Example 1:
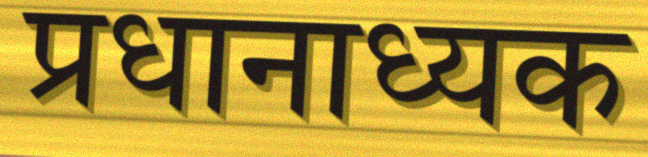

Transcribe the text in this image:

प्रधानाध्यक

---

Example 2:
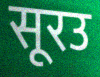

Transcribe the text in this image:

सूरउ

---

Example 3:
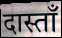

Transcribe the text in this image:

दास्ताँ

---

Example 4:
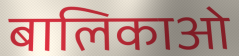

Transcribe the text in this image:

बालिकाओ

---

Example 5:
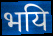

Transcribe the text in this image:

भयि